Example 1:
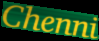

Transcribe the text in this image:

Chenni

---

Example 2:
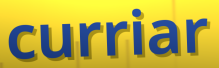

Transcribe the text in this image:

curriar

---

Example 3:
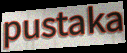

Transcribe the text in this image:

pustaka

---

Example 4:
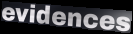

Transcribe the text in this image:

evidences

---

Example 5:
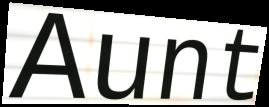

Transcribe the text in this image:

Aunt